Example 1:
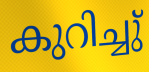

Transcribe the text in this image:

കുറിച്ചു്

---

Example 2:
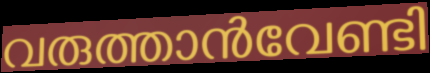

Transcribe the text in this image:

വരുത്താൻവേണ്ടി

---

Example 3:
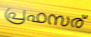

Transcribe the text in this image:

പ്രഫസര്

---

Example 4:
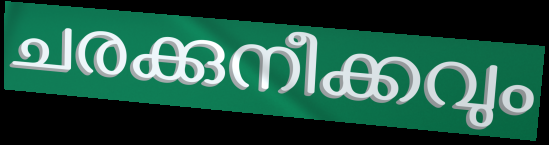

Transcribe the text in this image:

ചരക്കുനീക്കവും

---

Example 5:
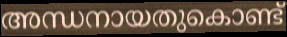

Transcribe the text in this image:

അന്ധനായതുകൊണ്ട്